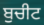
ਬੁਚੀਟ